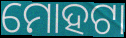
ମୋହଟା